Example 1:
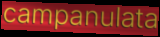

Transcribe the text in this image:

campanulata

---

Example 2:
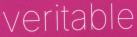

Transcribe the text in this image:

veritable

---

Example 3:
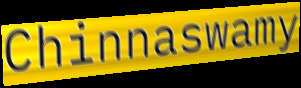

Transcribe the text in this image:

Chinnaswamy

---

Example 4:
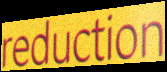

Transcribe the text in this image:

reduction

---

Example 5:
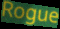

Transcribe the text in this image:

Rogue